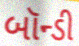
બૉન્ડી